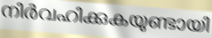
നിർവഹിക്കുകയുണ്ടായി